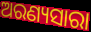
ଅରଣ୍ୟସାରା